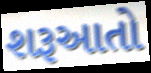
શરૂઆતો